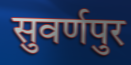
सुवर्णपुर